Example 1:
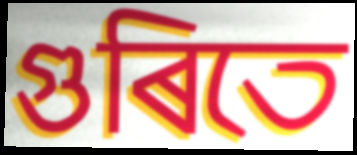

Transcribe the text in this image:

গুৰিতে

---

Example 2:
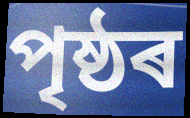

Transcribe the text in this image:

পৃষ্ঠৰ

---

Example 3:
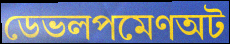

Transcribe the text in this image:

ডেভলপমেণঅট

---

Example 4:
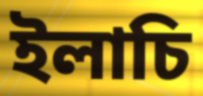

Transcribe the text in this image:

ইলাচি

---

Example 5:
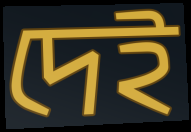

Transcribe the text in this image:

দেই